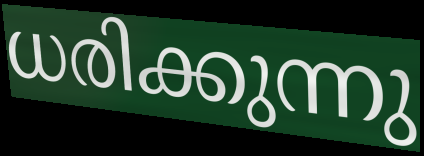
ധരിക്കുന്നു